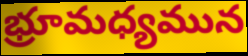
భ్రూమధ్యమున